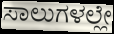
ಸಾಲುಗಳಲ್ಲೇ